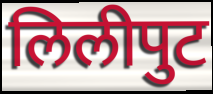
लिलीपुट